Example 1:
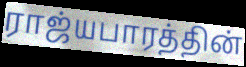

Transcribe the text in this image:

ராஜ்யபாரத்தின்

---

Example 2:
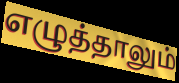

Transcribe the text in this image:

எழுத்தாலும்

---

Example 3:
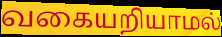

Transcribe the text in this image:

வகையறியாமல்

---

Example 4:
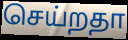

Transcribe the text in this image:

செய்றதா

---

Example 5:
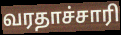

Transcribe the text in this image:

வரதாச்சாரி